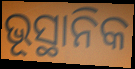
ଭୂସ୍ଥାନିକ